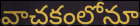
వాచకంలోనూ